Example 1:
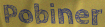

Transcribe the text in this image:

Pobiner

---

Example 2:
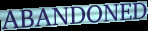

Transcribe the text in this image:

ABANDONED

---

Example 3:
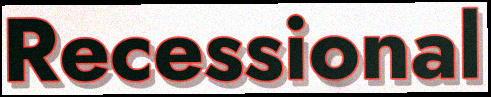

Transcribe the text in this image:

Recessional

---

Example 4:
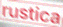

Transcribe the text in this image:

rustica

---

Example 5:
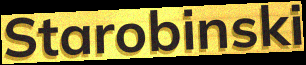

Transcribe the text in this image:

Starobinski